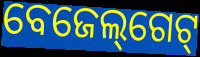
ବେଜେଲ୍‌ଗେଟ୍